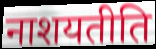
नाशयतीति